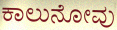
ಕಾಲುನೋವು